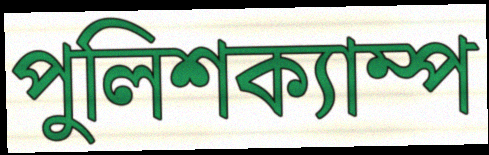
পুলিশক্যাম্প